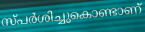
സ്പർശിച്ചുകൊണ്ടാണ്